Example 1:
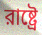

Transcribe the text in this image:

রাষ্ট্রে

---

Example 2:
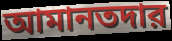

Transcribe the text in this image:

আমানতদার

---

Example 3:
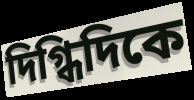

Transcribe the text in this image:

দিগ্ধিদিকে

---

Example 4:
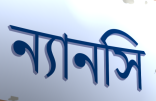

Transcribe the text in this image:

ন্যানসি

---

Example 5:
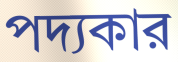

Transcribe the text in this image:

পদ্যকার